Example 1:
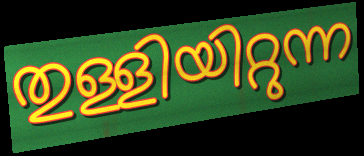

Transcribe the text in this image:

തുള്ളിയിറ്റുന്ന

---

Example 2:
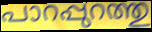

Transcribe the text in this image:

പാറപ്പുറത്തു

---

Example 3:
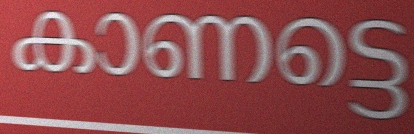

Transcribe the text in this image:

കാണട്ടെ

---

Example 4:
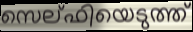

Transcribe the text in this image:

സെല്ഫിയെടുത്ത്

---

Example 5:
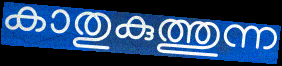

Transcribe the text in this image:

കാതുകുത്തുന്ന